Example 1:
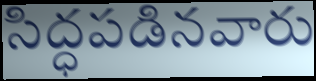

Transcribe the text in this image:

సిద్ధపడినవారు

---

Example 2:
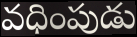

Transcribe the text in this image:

వధింపుడు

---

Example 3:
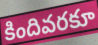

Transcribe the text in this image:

కిందివరకూ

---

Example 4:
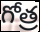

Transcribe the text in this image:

గోత్ర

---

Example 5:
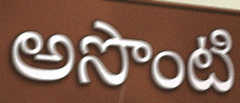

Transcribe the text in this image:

అసొంటి